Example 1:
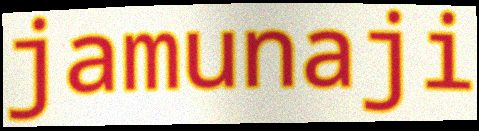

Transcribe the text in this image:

jamunaji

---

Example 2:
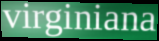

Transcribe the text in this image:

virginiana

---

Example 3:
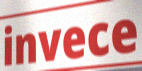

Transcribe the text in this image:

invece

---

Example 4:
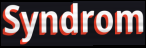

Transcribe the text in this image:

Syndrom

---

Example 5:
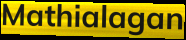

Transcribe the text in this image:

Mathialagan